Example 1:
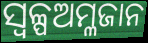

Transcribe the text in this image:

ସ୍ୱଳ୍ପଅମ୍ଳଜାନ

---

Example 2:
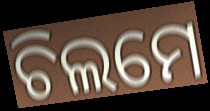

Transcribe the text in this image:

ଚିଲମେ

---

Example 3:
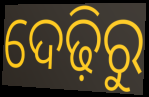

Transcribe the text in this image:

ଦେଢ଼ିରୁ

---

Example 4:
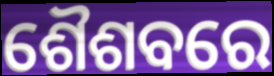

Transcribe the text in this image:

ଶୈଶବରେ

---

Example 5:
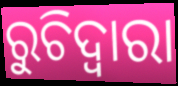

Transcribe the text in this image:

ରୁଚିଦ୍ୱାରା